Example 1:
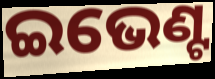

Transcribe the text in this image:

ଇଭେଣ୍ଟ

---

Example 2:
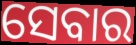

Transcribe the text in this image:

ସେବାର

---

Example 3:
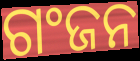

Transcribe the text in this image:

ଗଂଜନ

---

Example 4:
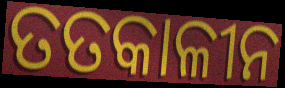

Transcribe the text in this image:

ତତକାଳୀନ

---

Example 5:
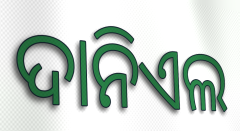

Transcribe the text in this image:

ଦାନିଏଲ